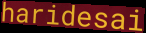
haridesai